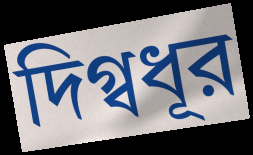
দিগ্বধূর